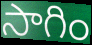
సాగిం